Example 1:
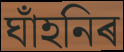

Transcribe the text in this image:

ঘাঁহনিৰ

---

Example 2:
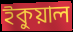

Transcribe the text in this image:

ইকুয়াল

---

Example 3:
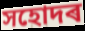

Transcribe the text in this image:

সহোদৰ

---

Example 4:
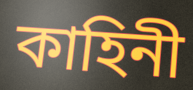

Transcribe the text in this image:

কাহিনী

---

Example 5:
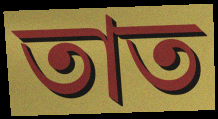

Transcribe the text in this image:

তাত